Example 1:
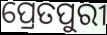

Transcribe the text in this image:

ପ୍ରେତପୁରୀ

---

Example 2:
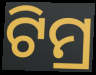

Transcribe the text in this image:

ଟିମ୍ର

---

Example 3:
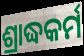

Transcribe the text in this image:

ଶ୍ରାଦ୍ଧକର୍ମ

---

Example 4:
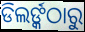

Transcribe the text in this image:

ଡିଲର୍ଙ୍କଠାରୁ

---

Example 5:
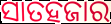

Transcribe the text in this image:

ସାତହଜାର